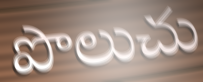
పొలుచు